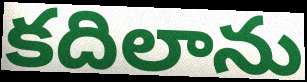
కదిలాను